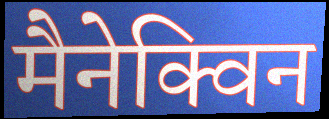
मैनेक्विन